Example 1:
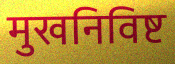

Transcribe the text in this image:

मुखनिविष्ट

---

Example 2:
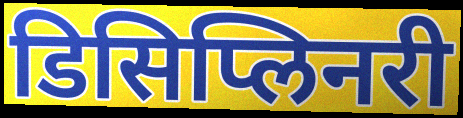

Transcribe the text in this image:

डिसिप्लिनरी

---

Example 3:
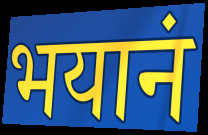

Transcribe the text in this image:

भयानं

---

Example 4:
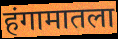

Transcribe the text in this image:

हंगामातला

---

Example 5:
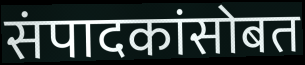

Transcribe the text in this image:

संपादकांसोबत